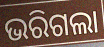
ଭରିଗଲା